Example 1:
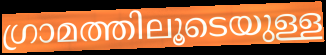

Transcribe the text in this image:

ഗ്രാമത്തിലൂടെയുള്ള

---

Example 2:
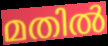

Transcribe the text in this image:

മതിൽ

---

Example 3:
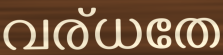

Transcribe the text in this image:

വര്ധതേ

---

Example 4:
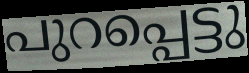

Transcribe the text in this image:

പുറപ്പെട്ടു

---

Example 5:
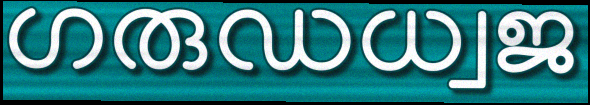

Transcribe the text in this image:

ഗരുഡധ്വജ